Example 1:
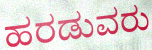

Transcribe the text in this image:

ಹರಡುವರು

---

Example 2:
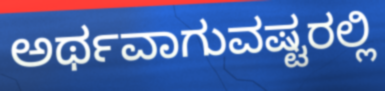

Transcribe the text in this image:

ಅರ್ಥವಾಗುವಷ್ಟರಲ್ಲಿ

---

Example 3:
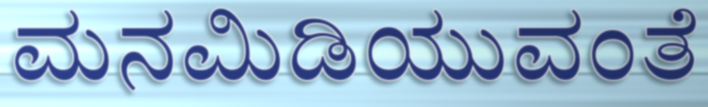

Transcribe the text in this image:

ಮನಮಿಡಿಯುವಂತೆ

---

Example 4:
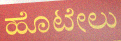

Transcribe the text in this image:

ಹೊಟೇಲು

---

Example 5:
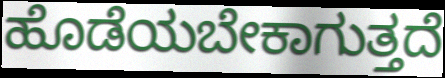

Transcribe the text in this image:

ಹೊಡೆಯಬೇಕಾಗುತ್ತದೆ